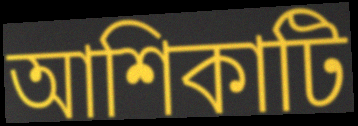
আশিকাটি